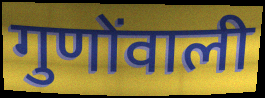
गुणोंवाली